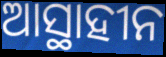
ଆସ୍ଥାହୀନ